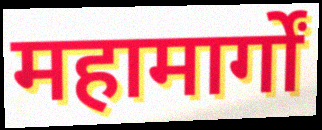
महामार्गों